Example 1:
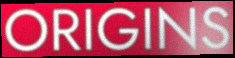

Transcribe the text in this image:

ORIGINS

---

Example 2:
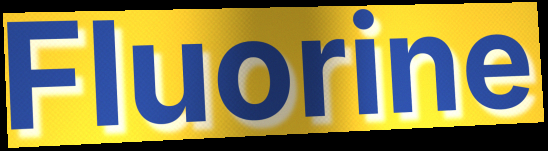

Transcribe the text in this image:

Fluorine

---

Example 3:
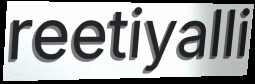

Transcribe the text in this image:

reetiyalli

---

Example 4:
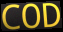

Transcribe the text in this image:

COD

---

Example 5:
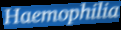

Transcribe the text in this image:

Haemophilia